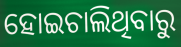
ହୋଇଚାଲିଥିବାରୁ